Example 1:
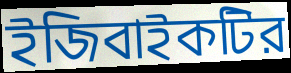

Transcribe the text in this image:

ইজিবাইকটির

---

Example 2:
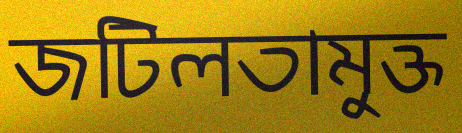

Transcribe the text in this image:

জটিলতামুক্ত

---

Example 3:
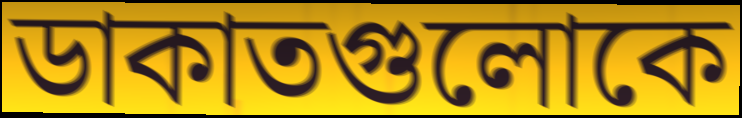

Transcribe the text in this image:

ডাকাতগুলোকে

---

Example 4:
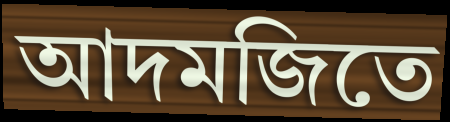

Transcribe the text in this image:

আদমজিতে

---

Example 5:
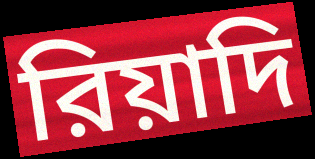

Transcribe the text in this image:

রিয়াদি